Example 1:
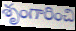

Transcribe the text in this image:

శృంగారించి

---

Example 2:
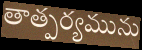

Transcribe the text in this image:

తాత్పర్యమును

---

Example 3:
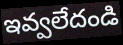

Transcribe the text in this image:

ఇవ్వలేదండి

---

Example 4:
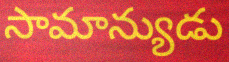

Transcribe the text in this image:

సామాన్యుడు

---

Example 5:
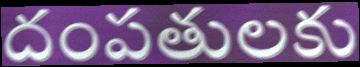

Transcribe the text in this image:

దంపతులకు